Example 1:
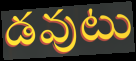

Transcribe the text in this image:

డవుటు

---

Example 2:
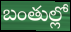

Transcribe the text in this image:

బంతుల్లో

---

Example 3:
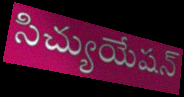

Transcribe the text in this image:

సిచ్యుయేషన్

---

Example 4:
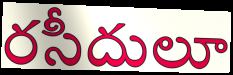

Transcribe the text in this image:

రసీదులూ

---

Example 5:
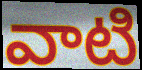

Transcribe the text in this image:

వాటి